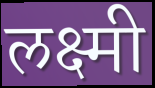
लक्ष्मी